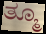
ತ್ಮೂ